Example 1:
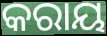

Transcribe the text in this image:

କରାୟ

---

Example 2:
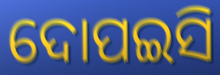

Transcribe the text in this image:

ଦୋପଇସି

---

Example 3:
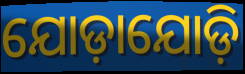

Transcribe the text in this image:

ଯୋଡ଼ାଯୋଡ଼ି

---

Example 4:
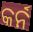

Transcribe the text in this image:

କର୍ନ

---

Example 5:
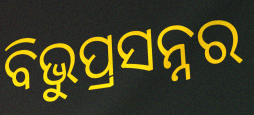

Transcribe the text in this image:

ବିଭୁପ୍ରସନ୍ନର